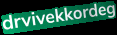
drvivekkordeg